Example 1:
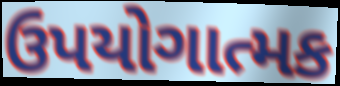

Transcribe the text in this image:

ઉપયોગાત્મક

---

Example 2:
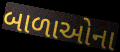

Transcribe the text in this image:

બાળાઓના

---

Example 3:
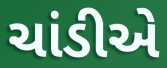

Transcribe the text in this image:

ચાંડીએ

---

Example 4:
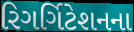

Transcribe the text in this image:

રિગર્ગિટેશનના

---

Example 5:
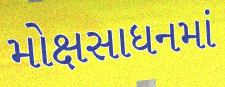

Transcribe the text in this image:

મોક્ષસાધનમાં